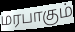
மரபாகும்